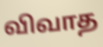
விவாத